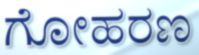
ಗೋಹರಣ